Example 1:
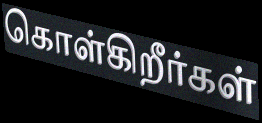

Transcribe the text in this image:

கொள்கிறீர்கள்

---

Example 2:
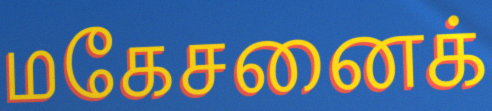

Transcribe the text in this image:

மகேசனைக்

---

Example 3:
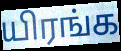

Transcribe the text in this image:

யிரங்க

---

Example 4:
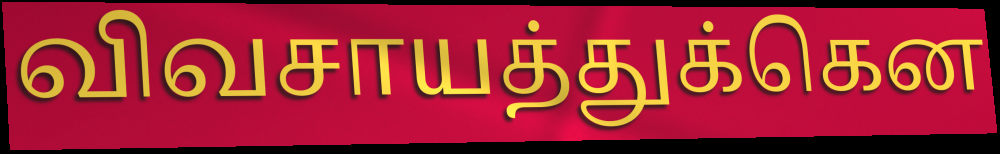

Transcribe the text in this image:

விவசாயத்துக்கென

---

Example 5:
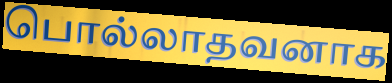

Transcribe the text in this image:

பொல்லாதவனாக